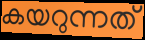
കയറുന്നത്